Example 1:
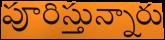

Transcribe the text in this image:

పూరిస్తున్నారు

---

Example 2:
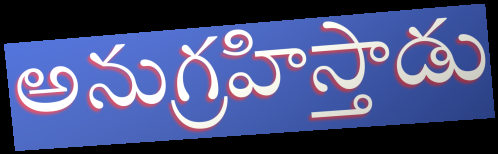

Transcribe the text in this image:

అనుగ్రహిస్తాడు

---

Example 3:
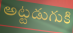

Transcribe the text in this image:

అట్టడుగుకి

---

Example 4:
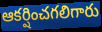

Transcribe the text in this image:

ఆకర్షించగలిగారు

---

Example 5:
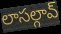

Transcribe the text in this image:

లాసల్గావ్